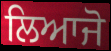
ਲਿਆਜੋ